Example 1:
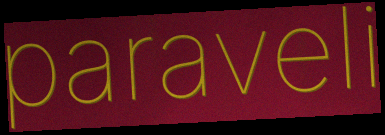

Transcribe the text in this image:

paraveli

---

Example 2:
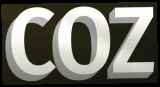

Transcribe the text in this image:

COZ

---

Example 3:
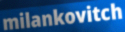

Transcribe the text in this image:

milankovitch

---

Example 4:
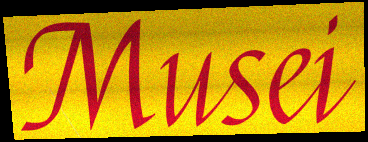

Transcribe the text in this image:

Musei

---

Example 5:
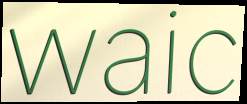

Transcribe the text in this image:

waic